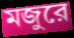
মজুরে